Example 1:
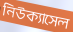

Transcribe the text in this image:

নিউক্যাসেল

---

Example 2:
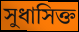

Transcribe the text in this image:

সুধাসিক্ত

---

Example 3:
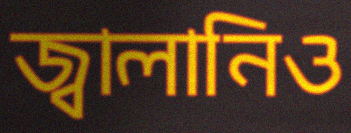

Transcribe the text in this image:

জ্বালানিও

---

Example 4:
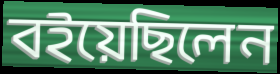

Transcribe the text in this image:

বইয়েছিলেন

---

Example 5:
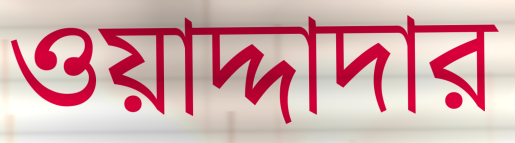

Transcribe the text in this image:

ওয়াদ্দাদার